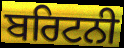
ਬਰਿਟਨੀ